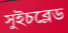
সুইচব্লেড